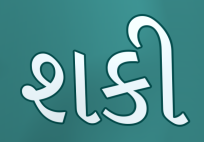
શકી